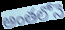
అంతలోనె